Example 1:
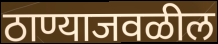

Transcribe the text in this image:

ठाण्याजवळील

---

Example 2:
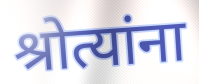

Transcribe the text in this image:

श्रोत्यांना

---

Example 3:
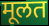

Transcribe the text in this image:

मूलत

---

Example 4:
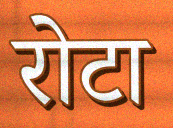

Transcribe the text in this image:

रोटा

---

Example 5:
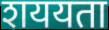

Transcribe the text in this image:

शययता